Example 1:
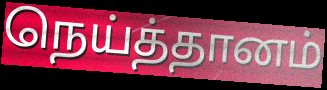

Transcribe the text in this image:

நெய்த்தானம்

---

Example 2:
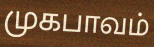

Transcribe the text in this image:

முகபாவம்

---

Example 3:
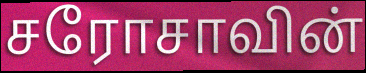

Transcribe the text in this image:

சரோசாவின்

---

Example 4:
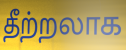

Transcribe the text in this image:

தீற்றலாக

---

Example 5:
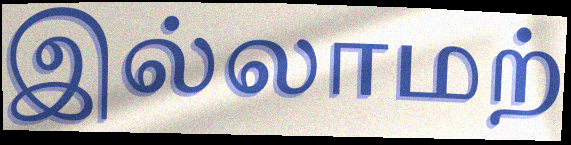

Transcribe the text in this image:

இல்லாமற்